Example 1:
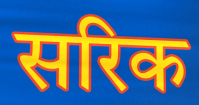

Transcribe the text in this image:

सरिक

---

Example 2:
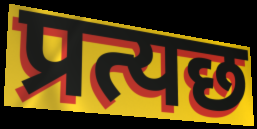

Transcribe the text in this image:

प्रत्यछ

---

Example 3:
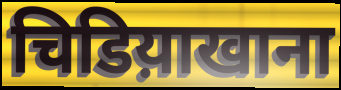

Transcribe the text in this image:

चिडिय़ाखाना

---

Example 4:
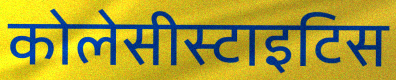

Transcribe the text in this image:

कोलेसीस्टाइटिस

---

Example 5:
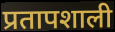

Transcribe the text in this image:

प्रतापशाली